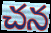
చన